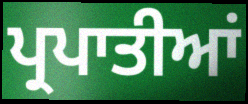
ਪ੍ਰਪਾਤੀਆਂ